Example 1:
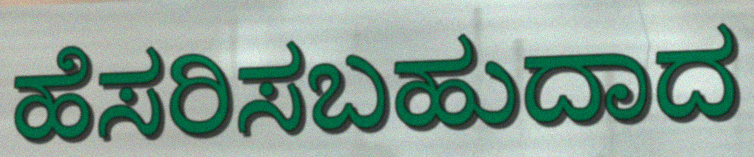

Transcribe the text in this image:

ಹೆಸರಿಸಬಹುದಾದ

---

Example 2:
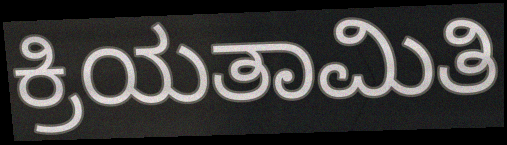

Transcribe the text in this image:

ಕ್ರಿಯತಾಮಿತಿ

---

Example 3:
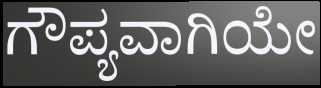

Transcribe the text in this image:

ಗೌಪ್ಯವಾಗಿಯೇ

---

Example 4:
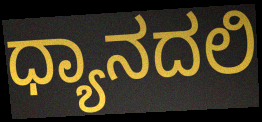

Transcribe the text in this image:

ಧ್ಯಾನದಲಿ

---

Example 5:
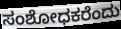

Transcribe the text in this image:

ಸಂಶೋಧಕರೆಂದು